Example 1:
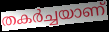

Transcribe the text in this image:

തകർച്ചയാണ്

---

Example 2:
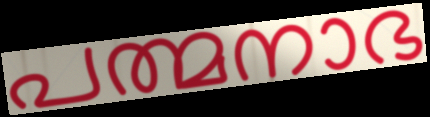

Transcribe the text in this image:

പത്മനാഭ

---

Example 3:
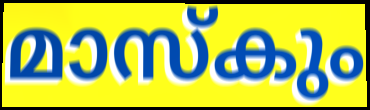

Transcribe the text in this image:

മാസ്കും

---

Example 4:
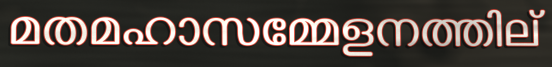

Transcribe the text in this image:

മതമഹാസമ്മേളനത്തില്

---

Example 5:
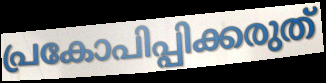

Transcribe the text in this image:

പ്രകോപിപ്പിക്കരുത്